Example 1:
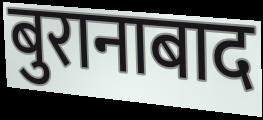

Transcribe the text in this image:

बुरानाबाद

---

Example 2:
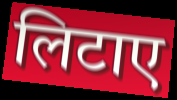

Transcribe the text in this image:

लिटाए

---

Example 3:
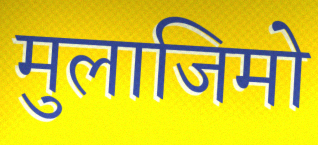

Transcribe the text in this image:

मुलाजिमो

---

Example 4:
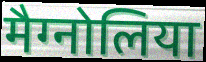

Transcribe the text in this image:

मैग्नोलिया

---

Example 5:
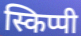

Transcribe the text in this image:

स्किप्पी